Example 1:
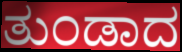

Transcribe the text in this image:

ತುಂಡಾದ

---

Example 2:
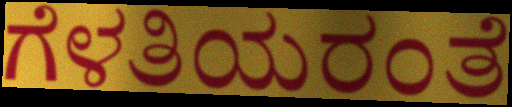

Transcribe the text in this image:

ಗೆಳತಿಯರಂತೆ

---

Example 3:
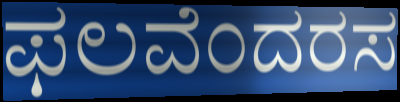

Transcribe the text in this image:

ಫಲವೆಂದರಸ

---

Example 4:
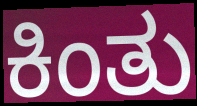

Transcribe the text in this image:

ಕಿಂತು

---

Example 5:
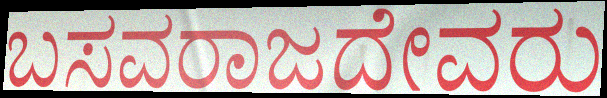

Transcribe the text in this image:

ಬಸವರಾಜದೇವರು